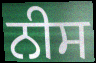
ਨੀਸ